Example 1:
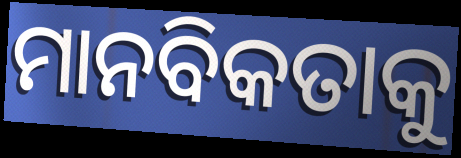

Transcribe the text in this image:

ମାନବିକତାକୁ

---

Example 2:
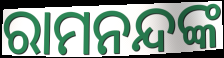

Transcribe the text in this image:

ରାମନନ୍ଦଙ୍କ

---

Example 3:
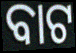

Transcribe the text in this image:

ବାଟ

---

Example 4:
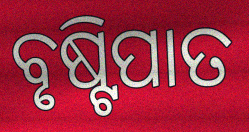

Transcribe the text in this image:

ବୃଷ୍ଟିପାତ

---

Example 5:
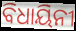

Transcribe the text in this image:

ବିଧାୟିନୀ